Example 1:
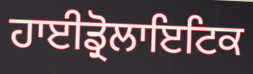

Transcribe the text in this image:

ਹਾਈਡ੍ਰੋਲਾਇਟਿਕ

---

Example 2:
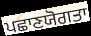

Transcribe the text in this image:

ਪਛਾਣਯੋਗਤਾ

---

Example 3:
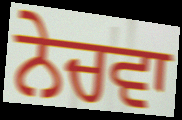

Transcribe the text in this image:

ਨੇਚਵਾ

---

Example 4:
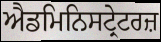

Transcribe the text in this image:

ਐਡਮਿਨਿਸਟ੍ਰੇਟਰਜ਼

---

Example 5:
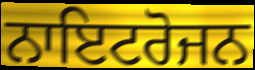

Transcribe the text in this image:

ਨਾਇਟਰੋਜਨ